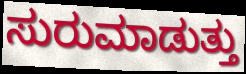
ಸುರುಮಾಡುತ್ತು